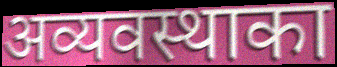
अव्यवस्थाका